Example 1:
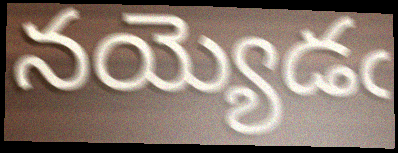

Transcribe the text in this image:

నయ్యెడఁ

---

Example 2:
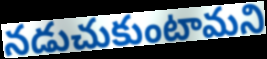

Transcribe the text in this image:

నడుచుకుంటామని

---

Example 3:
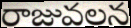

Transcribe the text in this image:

రాజువలన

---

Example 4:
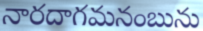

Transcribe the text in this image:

నారదాగమనంబును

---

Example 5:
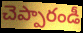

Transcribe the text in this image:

చెప్పారండీ